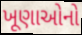
ખૂણાઓનો